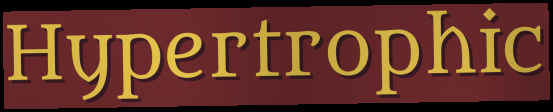
Hypertrophic